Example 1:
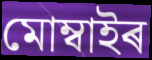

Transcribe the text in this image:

মোম্বাইৰ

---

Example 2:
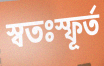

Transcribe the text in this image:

স্বতঃস্ফূৰ্ত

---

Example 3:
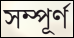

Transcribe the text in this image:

সম্পূৰ্ণ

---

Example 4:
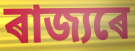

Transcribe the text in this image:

ৰাজ্যৰে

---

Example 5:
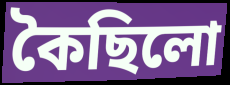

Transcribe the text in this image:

কৈছিলো